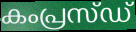
കംപ്രസ്ഡ്